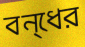
বন্‌ধের